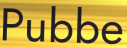
Pubbe